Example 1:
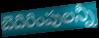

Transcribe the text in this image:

బెదిరింపులన్నీ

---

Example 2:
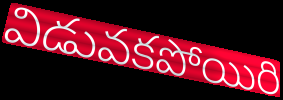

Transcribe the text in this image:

విడువకపోయిరి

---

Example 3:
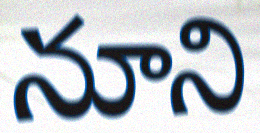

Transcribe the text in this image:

నూని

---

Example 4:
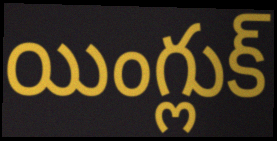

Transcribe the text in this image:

యింగ్లుక్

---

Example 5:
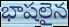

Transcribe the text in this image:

భాషలైన